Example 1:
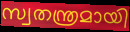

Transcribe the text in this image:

സ്വതന്ത്രമായി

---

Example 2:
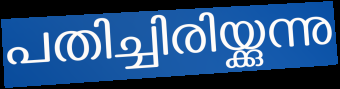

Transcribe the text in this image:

പതിച്ചിരിയ്ക്കുന്നു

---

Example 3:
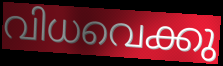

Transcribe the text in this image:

വിധവെക്കു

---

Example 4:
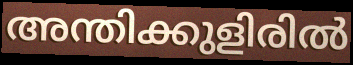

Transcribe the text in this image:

അന്തിക്കുളിരിൽ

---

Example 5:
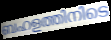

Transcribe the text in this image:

ബഹളത്തിനിടെ